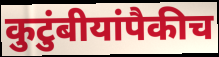
कुटुंबीयांपैकीच